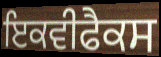
ਇਕਵੀਫੈਕਸ